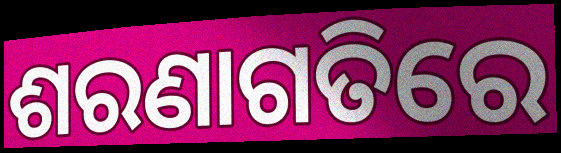
ଶରଣାଗତିରେ